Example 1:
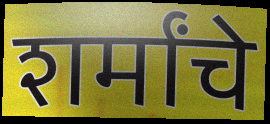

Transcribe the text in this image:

शर्मांचे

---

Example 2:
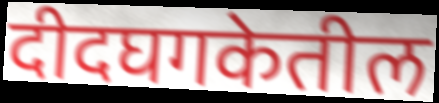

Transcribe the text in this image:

दीदघगकेतील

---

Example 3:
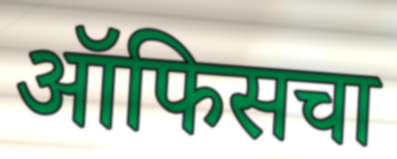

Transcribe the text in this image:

ऑफिसचा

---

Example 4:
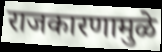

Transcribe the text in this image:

राजकारणामुळे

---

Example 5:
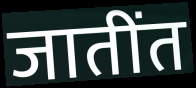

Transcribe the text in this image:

जातींत